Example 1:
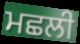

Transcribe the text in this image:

ਮਛਲੀ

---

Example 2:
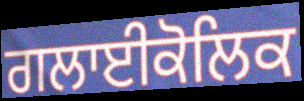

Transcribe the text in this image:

ਗਲਾਈਕੋਲਿਕ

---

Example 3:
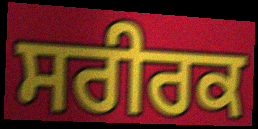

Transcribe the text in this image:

ਸਰੀਰਕ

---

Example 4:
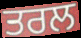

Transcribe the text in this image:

ਤਰਲ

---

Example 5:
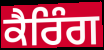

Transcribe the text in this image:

ਕੈਰਿੰਗ